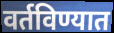
वर्तविण्यात